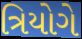
ત્રિયોગે